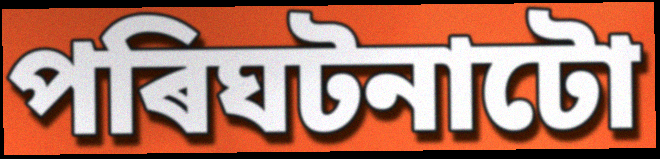
পৰিঘটনাটো